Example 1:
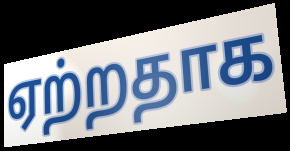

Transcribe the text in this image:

ஏற்றதாக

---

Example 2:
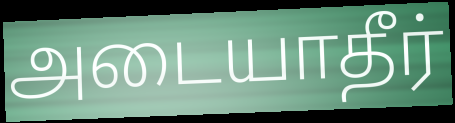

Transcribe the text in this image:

அடையாதீர்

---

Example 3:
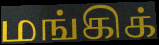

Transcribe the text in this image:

மங்கிக்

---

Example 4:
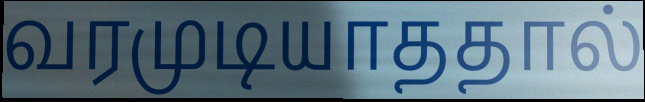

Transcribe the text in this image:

வரமுடியாததால்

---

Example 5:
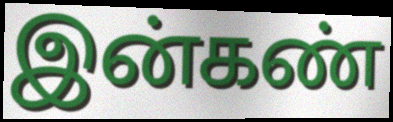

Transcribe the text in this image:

இன்கண்